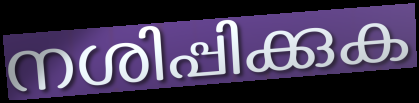
നശിപ്പിക്കുക